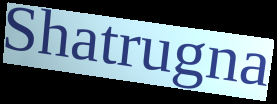
Shatrugna